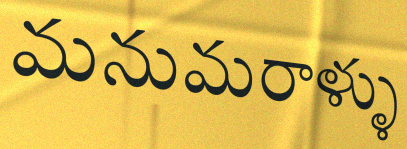
మనుమరాళ్ళు